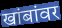
खांबांवर